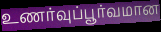
உணர்வுப்பூர்வமான